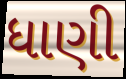
ધાણી